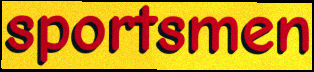
sportsmen